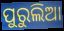
ପୁରୁଲିଆ